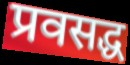
प्रवसद्ध